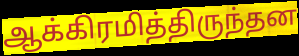
ஆக்கிரமித்திருந்தன